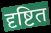
दृष्टित